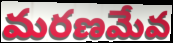
మరణమేవ